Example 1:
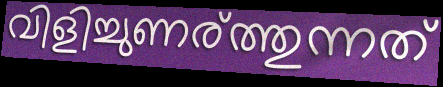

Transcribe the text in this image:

വിളിച്ചുണര്ത്തുന്നത്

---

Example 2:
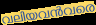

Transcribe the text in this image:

വലിയവൻവരെ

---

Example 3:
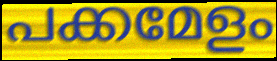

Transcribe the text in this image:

പക്കമേളം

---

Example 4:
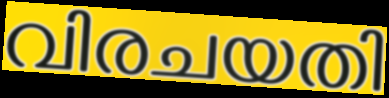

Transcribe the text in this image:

വിരചയതി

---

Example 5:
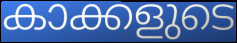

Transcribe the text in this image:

കാക്കളുടെ